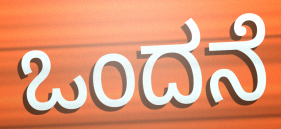
ಒಂದನೆ